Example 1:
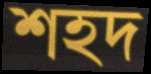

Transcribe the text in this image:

শহদ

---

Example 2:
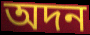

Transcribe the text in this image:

অদন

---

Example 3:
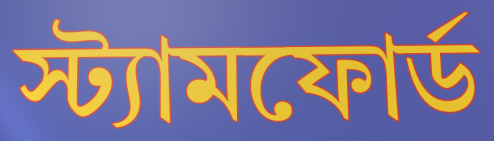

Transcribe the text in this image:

স্ট্যামফোর্ড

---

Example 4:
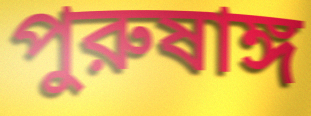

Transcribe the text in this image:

পুরুষাঙ্গ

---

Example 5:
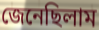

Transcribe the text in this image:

জেনেছিলাম